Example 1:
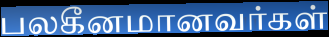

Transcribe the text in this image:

பலகீனமானவர்கள்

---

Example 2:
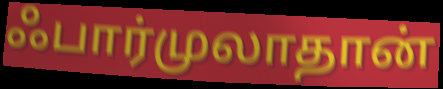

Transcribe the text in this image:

ஃபார்முலாதான்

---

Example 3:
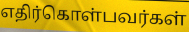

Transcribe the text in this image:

எதிர்கொள்பவர்கள்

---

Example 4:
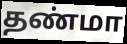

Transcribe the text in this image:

தண்மா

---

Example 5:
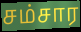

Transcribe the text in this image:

சம்சார